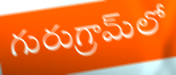
గురుగ్రామ్‌లో